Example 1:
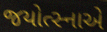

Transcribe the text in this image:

જયોત્સ્નાએ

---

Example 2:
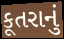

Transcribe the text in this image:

કૂતરાનું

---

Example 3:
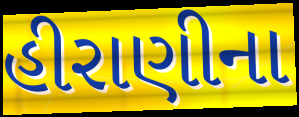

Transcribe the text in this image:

હીરાણીના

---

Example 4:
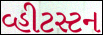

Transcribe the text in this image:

વ્હીટસ્ટન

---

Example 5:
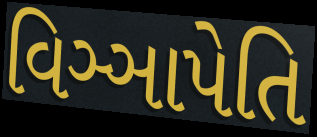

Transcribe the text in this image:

વિઞ્ઞાપેતિ